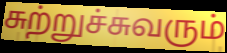
சுற்றுச்சுவரும்